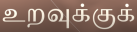
உறவுக்குக்